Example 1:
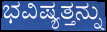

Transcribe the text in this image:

ಭವಿಷ್ಯತ್ತನ್ನು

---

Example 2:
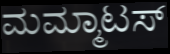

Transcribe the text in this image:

ಮಮ್ಮಾಟಸ್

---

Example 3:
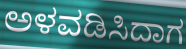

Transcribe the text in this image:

ಅಳವಡಿಸಿದಾಗ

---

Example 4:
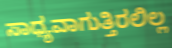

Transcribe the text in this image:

ಸಾಧ್ಯವಾಗುತ್ತಿರಲಿಲ್ಲ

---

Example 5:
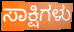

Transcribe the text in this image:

ಸಾಕ್ಷಿಗಳು